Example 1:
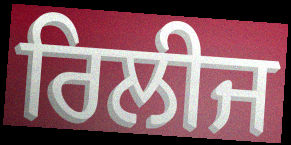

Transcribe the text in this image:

ਰਿਲੀਜ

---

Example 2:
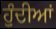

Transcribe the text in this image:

ਹੁੰਦੀਆਂ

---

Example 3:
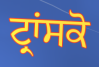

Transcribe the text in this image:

ਟ੍ਰਾਂਸਕੋ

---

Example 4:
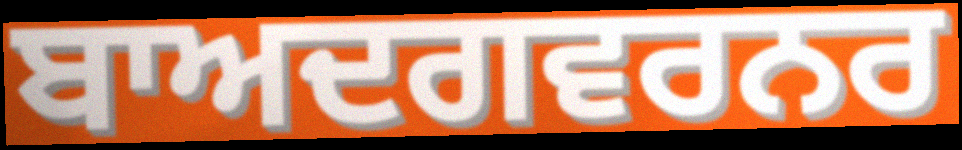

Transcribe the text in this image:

ਬਾਅਦਗਵਰਨਰ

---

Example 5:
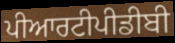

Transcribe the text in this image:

ਪੀਆਰਟੀਪੀਡੀਬੀ